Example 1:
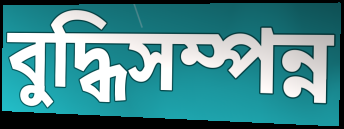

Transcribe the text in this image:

বুদ্ধিসম্পন্ন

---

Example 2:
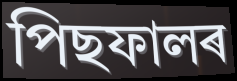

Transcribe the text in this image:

পিছফালৰ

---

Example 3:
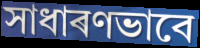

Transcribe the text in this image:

সাধাৰণভাবে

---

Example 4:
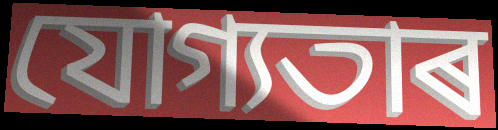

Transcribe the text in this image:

যোগ্যতাৰ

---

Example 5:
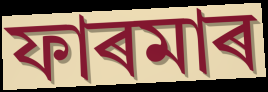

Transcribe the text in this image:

ফাৰমাৰ